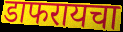
डाफरायचा